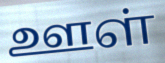
ஊள்